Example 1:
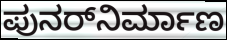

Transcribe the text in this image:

ಪುನರ್‌ನಿರ್ಮಾಣ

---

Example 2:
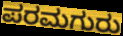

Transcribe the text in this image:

ಪರಮಗುರು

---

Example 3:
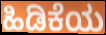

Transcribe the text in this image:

ಹಿಡಿಕೆಯ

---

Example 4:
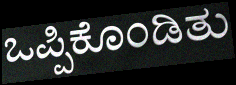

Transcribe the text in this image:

ಒಪ್ಪಿಕೊಂಡಿತು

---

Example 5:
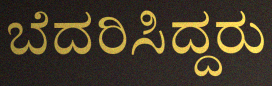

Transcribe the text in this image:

ಬೆದರಿಸಿದ್ದರು